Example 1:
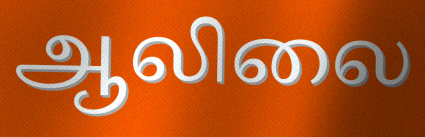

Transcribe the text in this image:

ஆலிலை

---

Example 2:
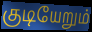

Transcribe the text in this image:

குடியேறும்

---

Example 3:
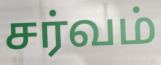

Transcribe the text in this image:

சர்வம்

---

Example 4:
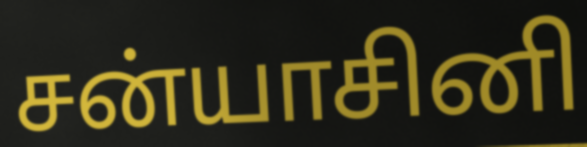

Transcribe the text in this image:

சன்யாசினி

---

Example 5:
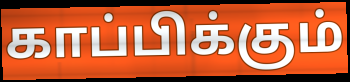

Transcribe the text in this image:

காப்பிக்கும்